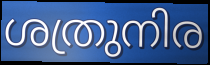
ശത്രുനിര